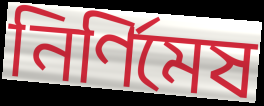
নির্ণিমেষ